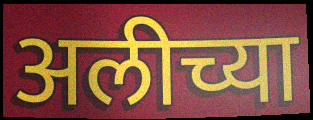
अलीच्या